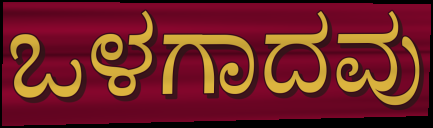
ಒಳಗಾದವು